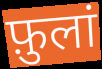
फ़ुलां